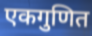
एकगुणित